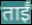
ताईं